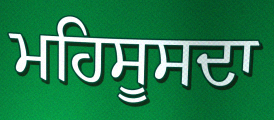
ਮਹਿਸੂਸਦਾ